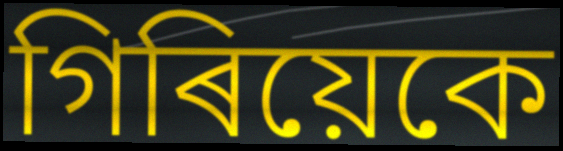
গিৰিয়েকে